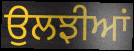
ਉਲਝੀਆਂ